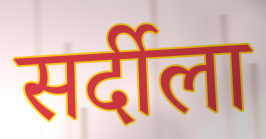
सर्दीला